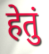
हेतुं